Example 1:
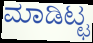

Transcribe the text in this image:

ಮಾಡಿಟ್ಟ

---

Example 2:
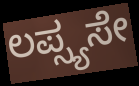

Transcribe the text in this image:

ಲಪ್ಸ್ಯಸೇ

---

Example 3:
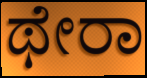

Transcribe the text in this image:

ಥೇರಾ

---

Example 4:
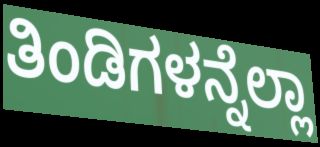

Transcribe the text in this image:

ತಿಂಡಿಗಳನ್ನೆಲ್ಲಾ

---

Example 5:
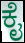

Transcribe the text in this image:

ಕೈ